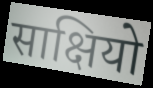
साक्षियो